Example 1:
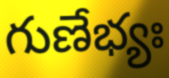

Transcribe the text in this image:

గుణేభ్యః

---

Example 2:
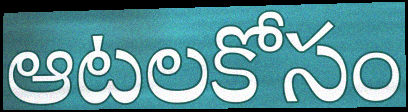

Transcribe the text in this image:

ఆటలకోసం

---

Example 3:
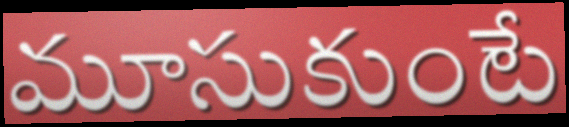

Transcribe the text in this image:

మూసుకుంటే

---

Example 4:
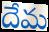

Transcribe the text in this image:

దేమ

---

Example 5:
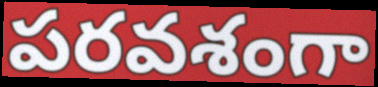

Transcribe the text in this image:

పరవశంగా